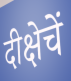
दीक्षेचें